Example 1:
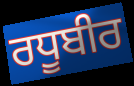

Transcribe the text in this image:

ਰਧੂਬੀਰ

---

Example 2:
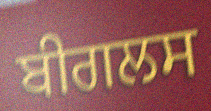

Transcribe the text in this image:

ਬੀਗਲਸ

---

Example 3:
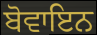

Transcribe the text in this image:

ਬੋਵਾਇਨ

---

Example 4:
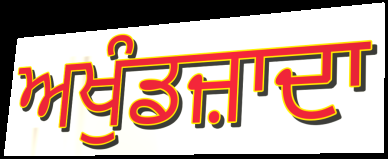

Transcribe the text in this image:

ਅਖੁੰਡਜ਼ਾਦਾ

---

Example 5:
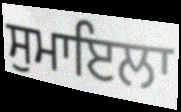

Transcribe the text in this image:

ਸੁਮਾਇਲਾ